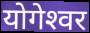
योगेश्‍वर